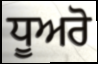
ਧੂਅਰੋ